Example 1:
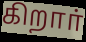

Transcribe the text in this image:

கிறார்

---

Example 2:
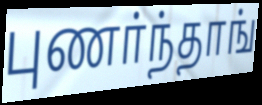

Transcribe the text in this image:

புணர்ந்தாங்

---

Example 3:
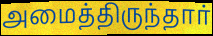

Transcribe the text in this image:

அமைத்திருந்தார்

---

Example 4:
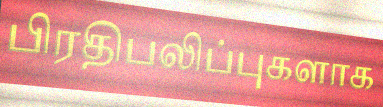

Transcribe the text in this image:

பிரதிபலிப்புகளாக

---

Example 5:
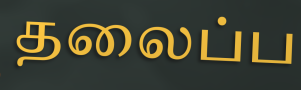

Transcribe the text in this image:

தலைப்ப